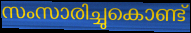
സംസാരിച്ചുകൊണ്ട്